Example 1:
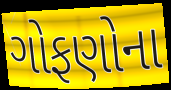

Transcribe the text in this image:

ગોફણોના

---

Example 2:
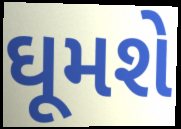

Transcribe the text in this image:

ઘૂમશે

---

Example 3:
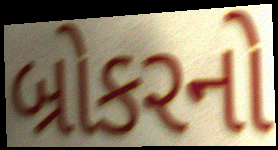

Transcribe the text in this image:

બ્રોકરનો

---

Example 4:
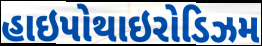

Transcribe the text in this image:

હાઇપોથાઇરોડિઝમ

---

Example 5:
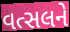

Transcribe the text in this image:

વત્સલને